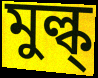
মুল্ক্